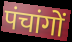
पंचांगों